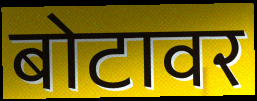
बोटावर